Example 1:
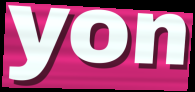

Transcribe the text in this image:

yon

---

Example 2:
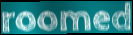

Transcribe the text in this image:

roomed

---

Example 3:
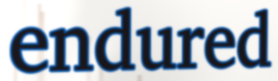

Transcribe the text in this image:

endured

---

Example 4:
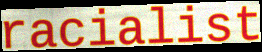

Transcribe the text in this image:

racialist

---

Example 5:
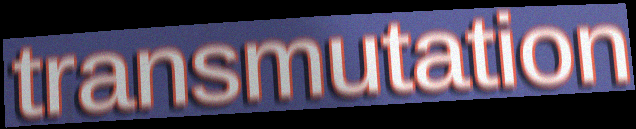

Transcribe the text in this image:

transmutation